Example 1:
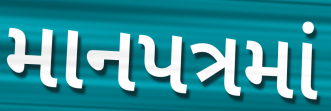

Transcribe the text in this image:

માનપત્રમાં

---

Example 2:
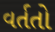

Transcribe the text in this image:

વર્તતો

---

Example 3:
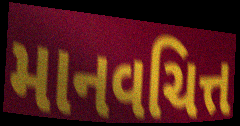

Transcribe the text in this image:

માનવચિત્ત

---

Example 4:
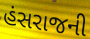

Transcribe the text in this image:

હંસરાજની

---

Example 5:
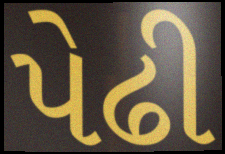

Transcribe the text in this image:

પેઢી